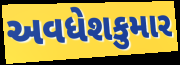
અવધેશકુમાર